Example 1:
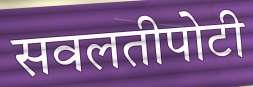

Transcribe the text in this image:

सवलतीपोटी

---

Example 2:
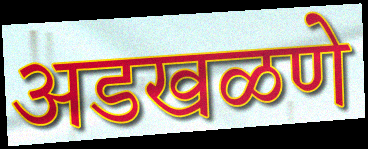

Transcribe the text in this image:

अडखळणे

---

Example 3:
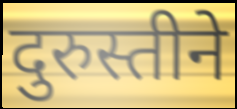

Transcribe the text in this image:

दुरुस्तीने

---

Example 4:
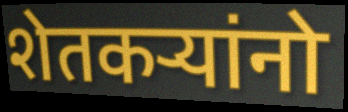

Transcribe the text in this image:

शेतकऱ्यांनो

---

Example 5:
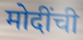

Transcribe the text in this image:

मोदींची